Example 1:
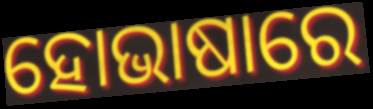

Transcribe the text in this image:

ହୋଭାଷାରେ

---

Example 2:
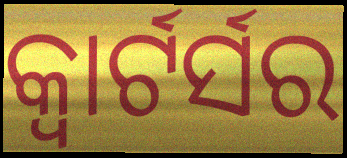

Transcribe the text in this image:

କ୍ବାର୍ଟର୍ସର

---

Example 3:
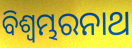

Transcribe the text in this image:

ବିଶ୍ୱମ୍ଭରନାଥ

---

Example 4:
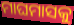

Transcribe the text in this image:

ମାଘମାସକୁ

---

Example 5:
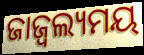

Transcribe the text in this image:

ଜାଜ୍ୱଲ୍ୟମୟ